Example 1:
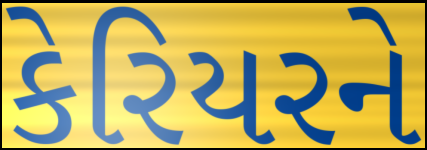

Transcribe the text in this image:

કેરિયરને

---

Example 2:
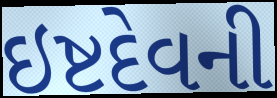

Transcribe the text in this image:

ઇષ્ટદેવની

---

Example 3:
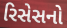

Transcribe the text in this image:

રિસેસનો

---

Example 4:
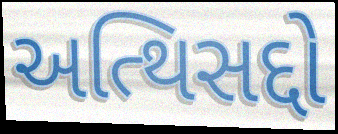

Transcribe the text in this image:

અત્થિસદ્દો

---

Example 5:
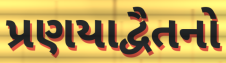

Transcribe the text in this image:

પ્રણયાદ્વૈતનો